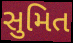
સુમિત